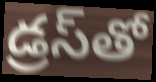
డ్రస్‌తో